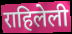
राहिलेली